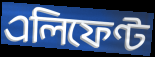
এলিফেণ্ট